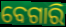
ବେଗାରି